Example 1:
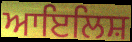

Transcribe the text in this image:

ਆਇਲਿਸ਼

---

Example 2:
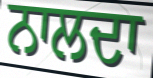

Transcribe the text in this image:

ਨਾਲਦਾ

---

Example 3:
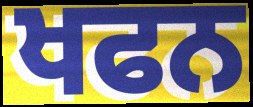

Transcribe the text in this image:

ਖਫਨ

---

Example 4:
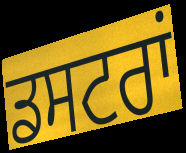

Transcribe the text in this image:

ਡਸਟਰਾਂ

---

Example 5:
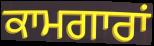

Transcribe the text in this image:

ਕਾਮਗਾਰਾਂ